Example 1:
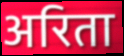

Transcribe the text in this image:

अरिता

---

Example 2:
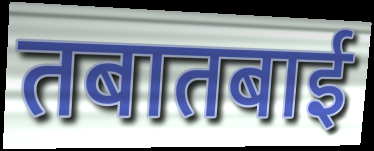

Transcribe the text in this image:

तबातबाई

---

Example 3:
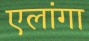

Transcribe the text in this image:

एलांगा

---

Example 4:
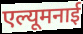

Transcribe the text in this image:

एल्यूमनाई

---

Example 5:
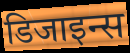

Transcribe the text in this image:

डिजाइन्स